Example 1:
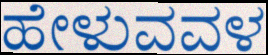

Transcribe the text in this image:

ಹೇಳುವವಳ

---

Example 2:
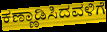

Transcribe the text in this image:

ಕಣ್ಣಾಡಿಸಿದವಳಿಗೆ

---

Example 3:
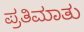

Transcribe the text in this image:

ಪ್ರತಿಮಾತು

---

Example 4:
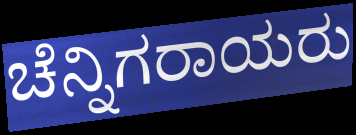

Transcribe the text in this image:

ಚೆನ್ನಿಗರಾಯರು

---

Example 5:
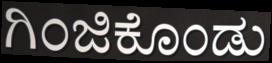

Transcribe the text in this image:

ಗಿಂಜಿಕೊಂಡು